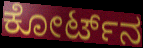
ಕೋರ್ಟ್‍ನ